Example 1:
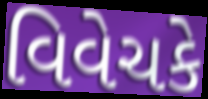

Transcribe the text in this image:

વિવેચકે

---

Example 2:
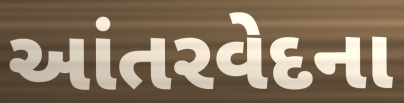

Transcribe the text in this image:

આંતરવેદના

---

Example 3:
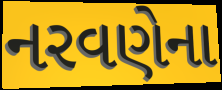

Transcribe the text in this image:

નરવણેના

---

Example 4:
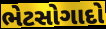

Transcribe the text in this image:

ભેટસોગાદો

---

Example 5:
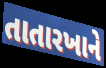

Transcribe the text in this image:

તાતારખાને